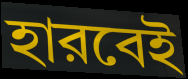
হারবেই